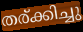
തര്ക്കിച്ചു